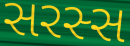
સરસ્સ